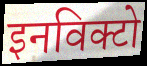
इनविक्टो